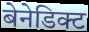
बेनेडिक्ट